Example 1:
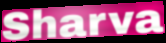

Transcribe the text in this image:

Sharva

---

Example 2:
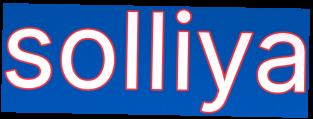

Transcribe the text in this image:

solliya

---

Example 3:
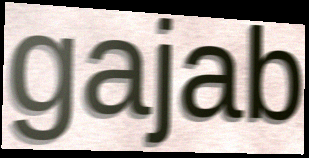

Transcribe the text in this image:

gajab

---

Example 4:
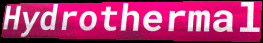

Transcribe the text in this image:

Hydrothermal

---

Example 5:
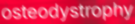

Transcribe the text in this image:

osteodystrophy